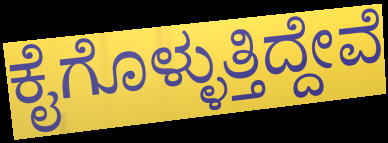
ಕೈಗೊಳ್ಳುತ್ತಿದ್ದೇವೆ